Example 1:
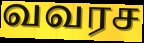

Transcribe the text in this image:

வவரச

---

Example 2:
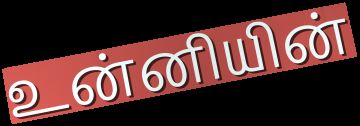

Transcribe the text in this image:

உன்னியின்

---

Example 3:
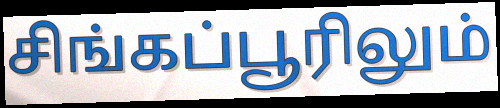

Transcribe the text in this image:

சிங்கப்பூரிலும்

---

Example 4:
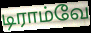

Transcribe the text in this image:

டிராம்வே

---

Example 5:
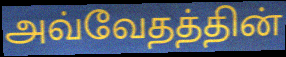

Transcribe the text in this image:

அவ்வேதத்தின்